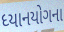
ધ્યાનયોગના